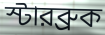
স্টারব্রুক